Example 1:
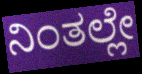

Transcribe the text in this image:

ನಿಂತಲ್ಲೇ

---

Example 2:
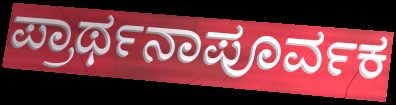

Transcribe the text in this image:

ಪ್ರಾರ್ಥನಾಪೂರ್ವಕ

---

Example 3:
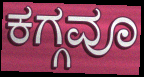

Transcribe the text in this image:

ಕಗ್ಗವೂ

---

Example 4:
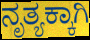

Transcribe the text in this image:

ನೃತ್ಯಕ್ಕಾಗಿ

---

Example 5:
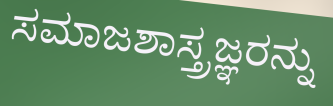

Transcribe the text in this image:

ಸಮಾಜಶಾಸ್ತ್ರಜ್ಞರನ್ನು